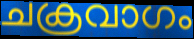
ചക്രവാഗം